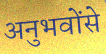
अनुभवोंसे